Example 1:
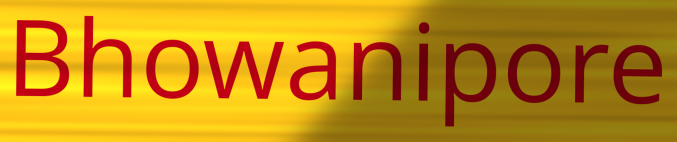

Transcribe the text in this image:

Bhowanipore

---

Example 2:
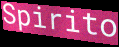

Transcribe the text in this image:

Spirito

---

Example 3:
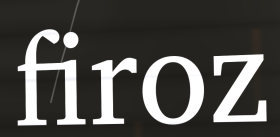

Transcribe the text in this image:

firoz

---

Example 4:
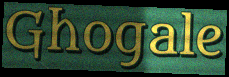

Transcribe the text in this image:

Ghogale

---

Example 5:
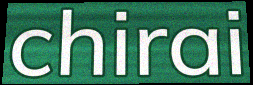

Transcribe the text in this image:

chirai